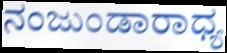
ನಂಜುಂಡಾರಾಧ್ಯ